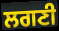
ਲਗਣੀ